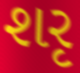
શરૃ